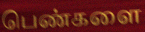
பெண்களை